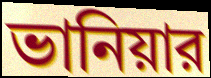
ভানিয়ার